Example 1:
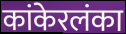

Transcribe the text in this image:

कांकेरलंका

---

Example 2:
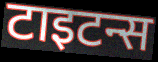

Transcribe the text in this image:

टाइटन्स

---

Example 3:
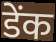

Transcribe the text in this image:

डेंक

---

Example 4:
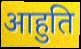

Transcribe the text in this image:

आहुति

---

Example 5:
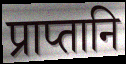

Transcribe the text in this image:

प्राप्तानि